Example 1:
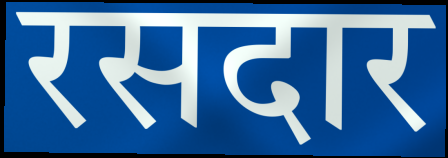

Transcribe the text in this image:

रसदार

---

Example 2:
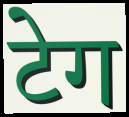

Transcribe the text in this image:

टेग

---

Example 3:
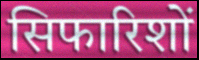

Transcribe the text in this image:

सिफारिशों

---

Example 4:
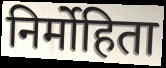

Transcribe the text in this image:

निर्मोहिता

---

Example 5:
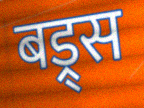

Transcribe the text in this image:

बड्र्स